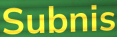
Subnis